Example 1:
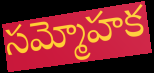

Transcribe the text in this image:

సమ్మోహక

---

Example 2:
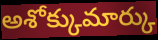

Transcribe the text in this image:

అశోక్కుమార్కు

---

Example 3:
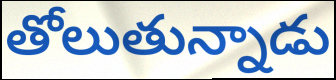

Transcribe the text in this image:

తోలుతున్నాడు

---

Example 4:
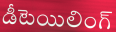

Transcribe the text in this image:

డీటెయిలింగ్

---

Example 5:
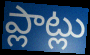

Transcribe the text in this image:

ప్లాట్లు